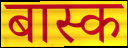
बास्क